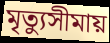
মৃত্যুসীমায়